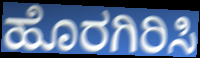
ಹೊರಗಿರಿಸಿ